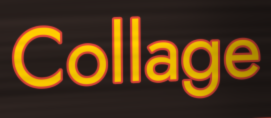
Collage